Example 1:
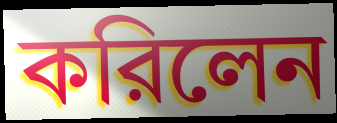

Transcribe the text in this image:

করিলেন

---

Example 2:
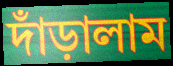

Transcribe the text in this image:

দাঁড়ালাম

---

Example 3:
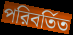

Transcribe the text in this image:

পরিবর্তিত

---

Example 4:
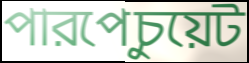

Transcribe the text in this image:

পারপেচুয়েট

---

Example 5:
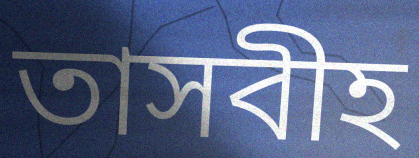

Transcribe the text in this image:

তাসবীহ